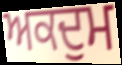
ਅਕਦੁਮ